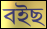
বইছ